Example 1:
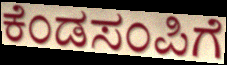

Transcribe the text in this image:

ಕೆಂಡಸಂಪಿಗೆ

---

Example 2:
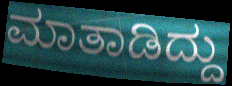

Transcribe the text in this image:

ಮಾತಾಡಿದ್ದು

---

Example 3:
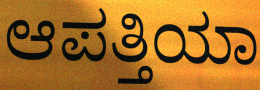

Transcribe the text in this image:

ಆಪತ್ತಿಯಾ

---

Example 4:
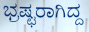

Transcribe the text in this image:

ಭ್ರಷ್ಟರಾಗಿದ್ದ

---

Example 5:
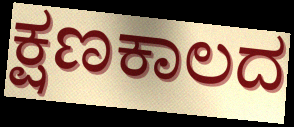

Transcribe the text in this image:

ಕ್ಷಣಕಾಲದ